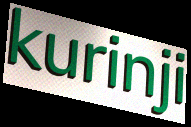
kurinji